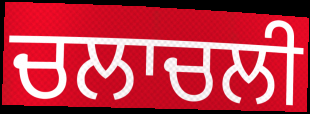
ਚਲਾਚਲੀ